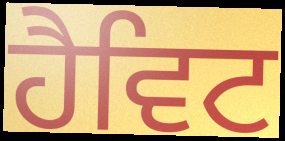
ਹੈਵਿਟ